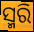
ସ୍ମରି